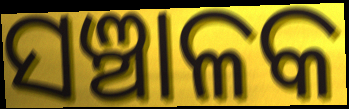
ସଞ୍ଚାଳକ